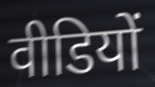
वीडियों